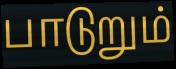
பாடுறும்